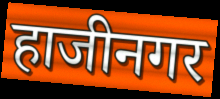
हाजीनगर